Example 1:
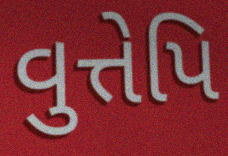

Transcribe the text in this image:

વુત્તેપિ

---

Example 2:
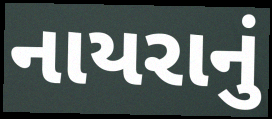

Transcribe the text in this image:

નાયરાનું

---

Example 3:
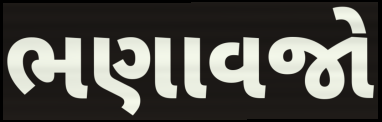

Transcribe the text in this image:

ભણાવજો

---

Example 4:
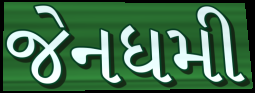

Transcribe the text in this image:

જેનધમી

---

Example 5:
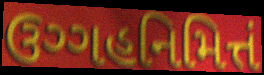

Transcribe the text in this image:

ઉગ્ગહનિમિત્તં